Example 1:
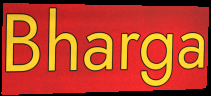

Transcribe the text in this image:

Bharga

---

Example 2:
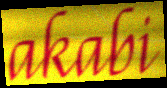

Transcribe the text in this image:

akabi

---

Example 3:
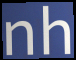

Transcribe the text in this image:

nh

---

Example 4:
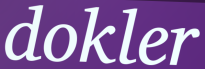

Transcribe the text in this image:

dokler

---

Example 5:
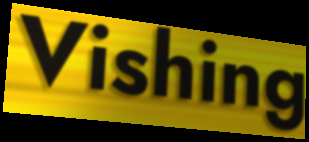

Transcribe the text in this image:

Vishing